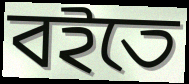
বইতে